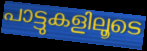
പാട്ടുകളിലൂടെ